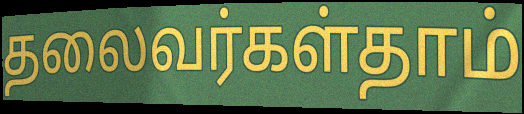
தலைவர்கள்தாம்